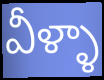
వీళ్ళా